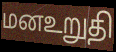
மனஉறுதி